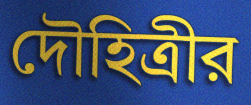
দৌহিত্রীর